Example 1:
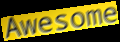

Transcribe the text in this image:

Awesome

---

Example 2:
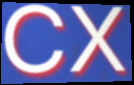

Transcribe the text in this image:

CX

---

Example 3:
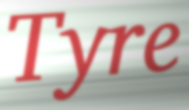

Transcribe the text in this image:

Tyre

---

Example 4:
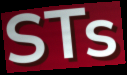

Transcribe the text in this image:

STs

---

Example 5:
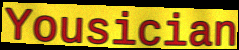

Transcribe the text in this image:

Yousician